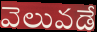
వెలువడే